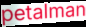
petalman